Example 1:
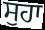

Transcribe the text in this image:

ਸੁਹਾ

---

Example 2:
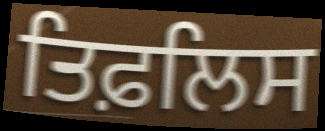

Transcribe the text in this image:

ਤਿਫ਼ਲਿਸ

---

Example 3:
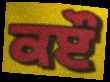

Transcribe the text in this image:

ਕੲੌ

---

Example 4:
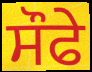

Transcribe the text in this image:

ਸੌਫੇ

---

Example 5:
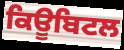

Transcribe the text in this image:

ਕਿਊਬਿਟਲ